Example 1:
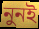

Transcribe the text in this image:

নুনই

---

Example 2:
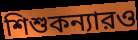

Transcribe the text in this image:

শিশুকন্যারও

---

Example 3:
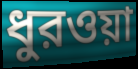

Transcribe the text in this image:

ধুরওয়া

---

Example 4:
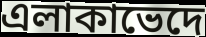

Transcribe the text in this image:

এলাকাভেদে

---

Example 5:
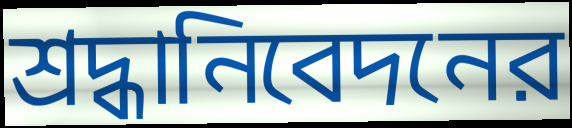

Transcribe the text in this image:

শ্রদ্ধানিবেদনের